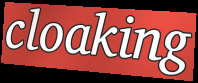
cloaking